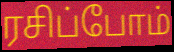
ரசிப்போம்